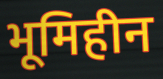
भूमिहीन